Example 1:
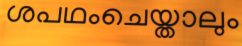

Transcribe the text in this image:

ശപഥംചെയ്താലും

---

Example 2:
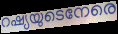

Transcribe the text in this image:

റഷ്യയുടെനേരെ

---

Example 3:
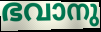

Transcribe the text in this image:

ഭവാനു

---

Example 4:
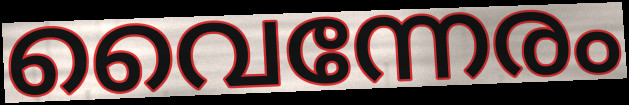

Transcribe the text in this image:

വൈന്നേരം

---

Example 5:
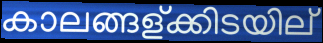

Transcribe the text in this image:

കാലങ്ങള്ക്കിടയില്